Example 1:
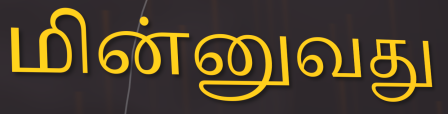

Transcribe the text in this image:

மின்னுவது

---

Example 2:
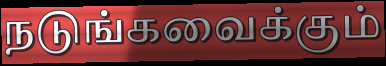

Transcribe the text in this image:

நடுங்கவைக்கும்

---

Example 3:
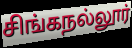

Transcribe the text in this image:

சிங்கநல்லூர்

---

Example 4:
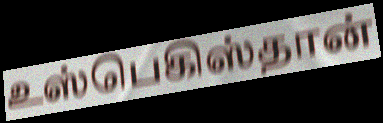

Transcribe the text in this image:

உஸ்பெகிஸ்தான்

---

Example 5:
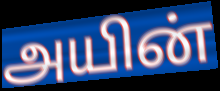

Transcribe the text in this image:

அயின்